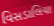
વિસડાલિયા